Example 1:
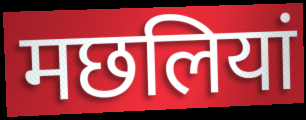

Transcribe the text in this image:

मछलियां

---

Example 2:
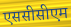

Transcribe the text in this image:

एससीसीएम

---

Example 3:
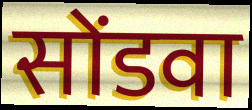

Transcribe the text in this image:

सोंडवा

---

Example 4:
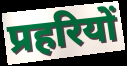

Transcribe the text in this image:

प्रहरियों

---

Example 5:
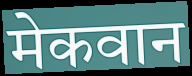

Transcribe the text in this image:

मेकवान